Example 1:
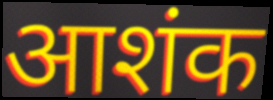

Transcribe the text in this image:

आशंक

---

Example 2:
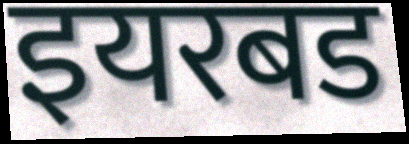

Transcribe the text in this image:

इयरबड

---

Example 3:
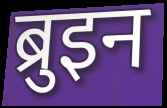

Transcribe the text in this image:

ब्रुइन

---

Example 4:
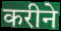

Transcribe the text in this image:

करीने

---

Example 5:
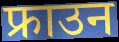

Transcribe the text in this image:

फ्राउन